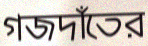
গজদাঁতের